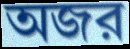
অজর